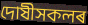
দোষীসকলৰ